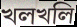
খলখলি